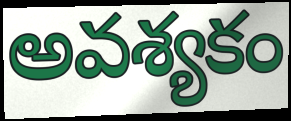
అవశ్యకం